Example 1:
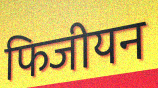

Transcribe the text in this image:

फिजीयन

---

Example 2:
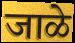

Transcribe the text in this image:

जाळे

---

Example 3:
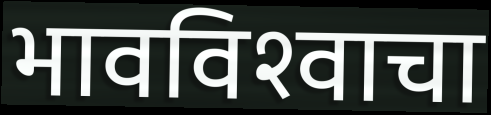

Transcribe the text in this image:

भावविश्वाचा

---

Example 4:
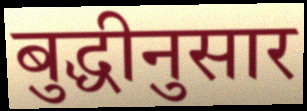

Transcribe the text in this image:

बुद्धीनुसार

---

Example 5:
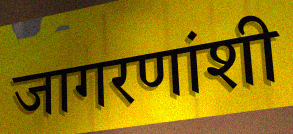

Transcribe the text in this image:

जागरणांशी